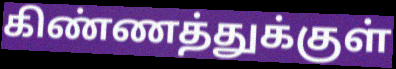
கிண்ணத்துக்குள்